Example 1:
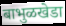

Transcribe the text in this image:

बाभुळखेडा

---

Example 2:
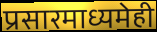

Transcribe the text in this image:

प्रसारमाध्यमेही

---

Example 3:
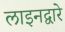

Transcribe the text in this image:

लाइनद्वारे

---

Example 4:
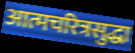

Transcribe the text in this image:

आत्मचरित्रसुद्धा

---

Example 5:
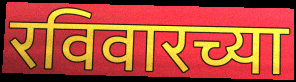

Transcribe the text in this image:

रविवारच्या